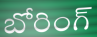
బోరింగ్